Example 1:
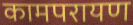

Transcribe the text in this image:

कामपरायण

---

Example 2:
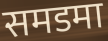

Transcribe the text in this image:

समडमा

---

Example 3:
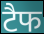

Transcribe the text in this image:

टैफ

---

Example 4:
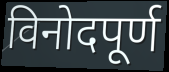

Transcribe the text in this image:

विनोदपूर्ण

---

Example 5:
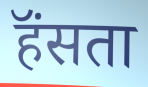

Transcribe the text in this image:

हॅंसता